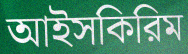
আইসকিরিম